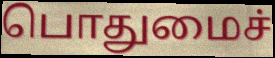
பொதுமைச்